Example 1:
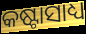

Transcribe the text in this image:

କଷ୍ଟାସାଧ୍ୟ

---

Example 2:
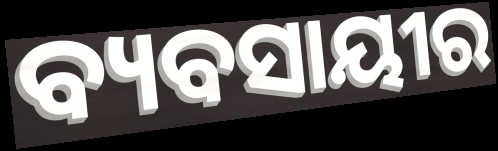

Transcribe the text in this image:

ବ୍ୟବସାୟୀର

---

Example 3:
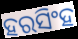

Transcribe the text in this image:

ହରସିଂହ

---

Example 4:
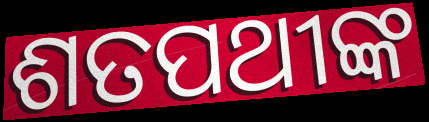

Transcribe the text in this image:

ଶତପଥୀଙ୍କ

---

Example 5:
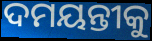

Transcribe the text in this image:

ଦମୟନ୍ତୀକୁ